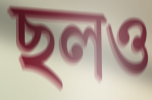
ছলও